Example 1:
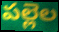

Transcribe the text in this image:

పల్లెల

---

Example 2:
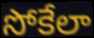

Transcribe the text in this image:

సోకేలా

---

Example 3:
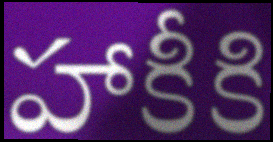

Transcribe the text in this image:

హాకీకి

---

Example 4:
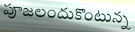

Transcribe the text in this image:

పూజలందుకొంటున్న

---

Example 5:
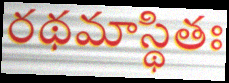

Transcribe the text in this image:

రథమాస్థితః